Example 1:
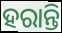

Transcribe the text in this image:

ହରାନ୍ତି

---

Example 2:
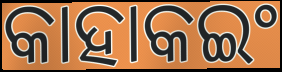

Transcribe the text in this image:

କାହାକଇଂ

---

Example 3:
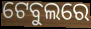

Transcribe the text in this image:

ଟେବୁଲରେ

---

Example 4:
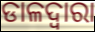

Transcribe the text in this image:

ଡାଳଦ୍ୱାରା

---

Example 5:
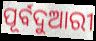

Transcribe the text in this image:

ପୂର୍ବଦୁଆରୀ